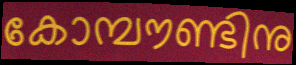
കോമ്പൗണ്ടിനു